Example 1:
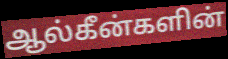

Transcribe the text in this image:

ஆல்கீன்களின்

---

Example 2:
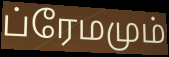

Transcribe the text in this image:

ப்ரேமமும்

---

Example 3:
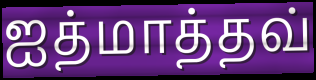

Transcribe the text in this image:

ஐத்மாத்தவ்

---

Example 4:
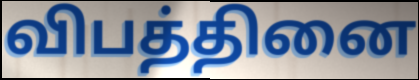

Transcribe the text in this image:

விபத்தினை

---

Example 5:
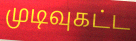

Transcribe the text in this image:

முடிவுகட்ட